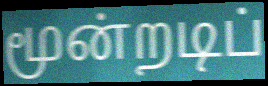
மூன்றடிப்